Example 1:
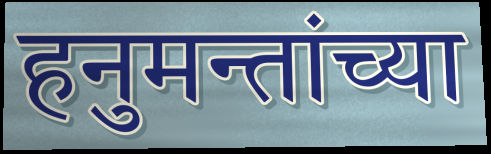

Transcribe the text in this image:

हनुमन्तांच्या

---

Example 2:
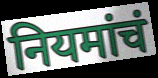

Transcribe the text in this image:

नियमांचं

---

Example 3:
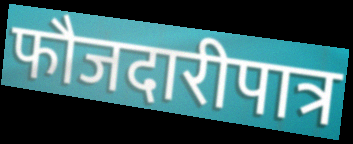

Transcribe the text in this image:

फौजदारीपात्र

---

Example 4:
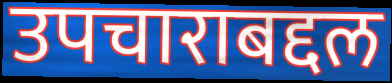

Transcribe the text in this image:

उपचाराबद्दल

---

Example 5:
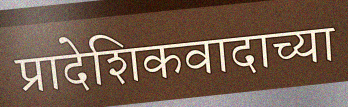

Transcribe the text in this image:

प्रादेशिकवादाच्या